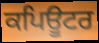
ਕਪਿਊਟਰ